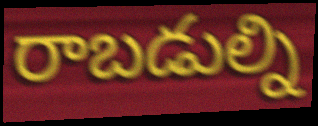
రాబడుల్ని